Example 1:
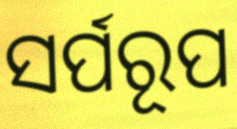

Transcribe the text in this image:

ସର୍ପରୂପ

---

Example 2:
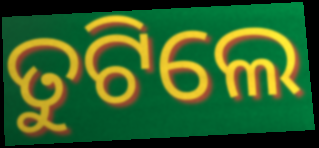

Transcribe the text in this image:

ତୁଟିଲେ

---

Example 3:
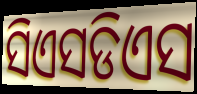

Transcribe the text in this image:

ସିଏସଡିଏସ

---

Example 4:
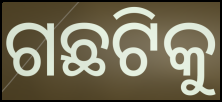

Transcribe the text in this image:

ଗଛଟିକୁ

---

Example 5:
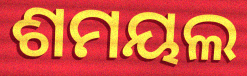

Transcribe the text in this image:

ଶମୟଲ